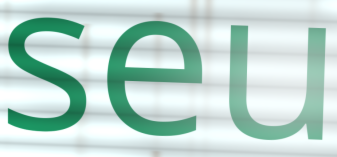
seu